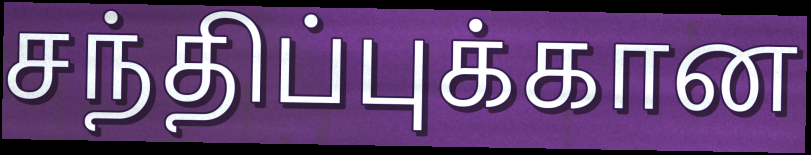
சந்திப்புக்கான